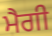
ਮੈਗੀ